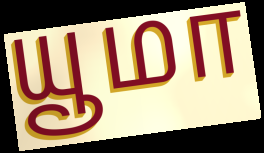
யூமா